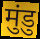
मुंडु